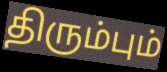
திரும்பும்